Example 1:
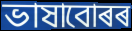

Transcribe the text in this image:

ভাষাবোৰৰ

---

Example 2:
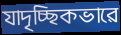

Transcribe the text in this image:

যাদৃচ্ছিকভাৱে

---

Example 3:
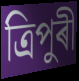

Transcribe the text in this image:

ত্ৰিপুৰী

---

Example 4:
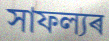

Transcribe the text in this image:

সাফল্যৰ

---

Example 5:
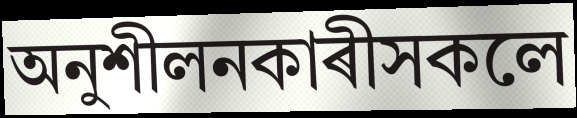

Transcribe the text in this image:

অনুশীলনকাৰীসকলে